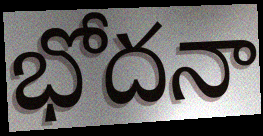
భోదనా